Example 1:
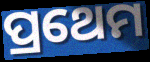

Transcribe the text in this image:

ପ୍ରଥେମ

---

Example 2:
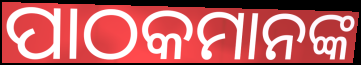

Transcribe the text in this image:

ପାଠକମାନଙ୍କ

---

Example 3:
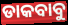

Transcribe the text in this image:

ଡାକବାବୁ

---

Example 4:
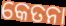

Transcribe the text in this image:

କେତନା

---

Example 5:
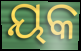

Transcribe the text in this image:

ୟକ